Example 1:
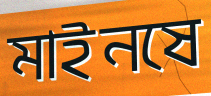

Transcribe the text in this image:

মাইনষে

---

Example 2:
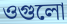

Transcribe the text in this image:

ওগুলো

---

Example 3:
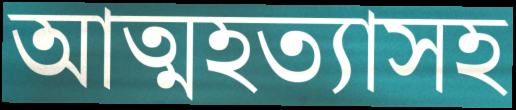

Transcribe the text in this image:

আত্মহত্যাসহ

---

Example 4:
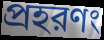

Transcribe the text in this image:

প্রহরণং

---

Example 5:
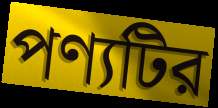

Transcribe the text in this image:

পণ্যটির